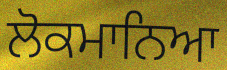
ਲੋਕਮਾਨਿਆ